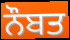
ਨੌਬਤ